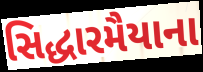
સિદ્ધારમૈયાના